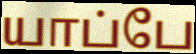
யாப்பே